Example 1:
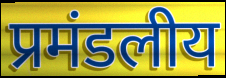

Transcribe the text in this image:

प्रमंडलीय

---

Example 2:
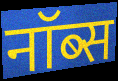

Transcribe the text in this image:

नॉब्स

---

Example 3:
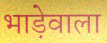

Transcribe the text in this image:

भाड़ेवाला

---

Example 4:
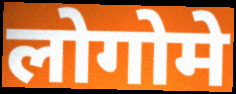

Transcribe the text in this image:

लोगोमे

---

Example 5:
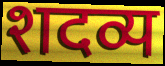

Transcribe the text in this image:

शदव्य